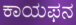
ಕಾಯಫನ